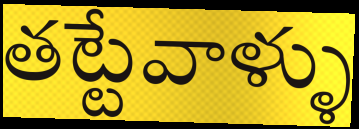
తట్టేవాళ్ళు